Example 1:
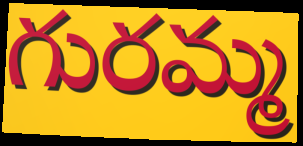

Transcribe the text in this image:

గురమ్మ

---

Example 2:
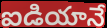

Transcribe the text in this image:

ఐడియానే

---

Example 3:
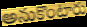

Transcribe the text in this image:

అనుకొంటారు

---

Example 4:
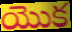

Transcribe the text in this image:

యొక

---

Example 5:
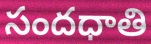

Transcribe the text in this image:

సందధాతి